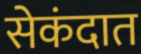
सेकंदात